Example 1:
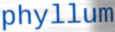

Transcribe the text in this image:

phyllum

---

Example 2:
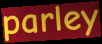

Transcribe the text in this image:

parley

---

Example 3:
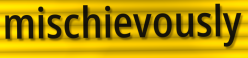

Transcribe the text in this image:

mischievously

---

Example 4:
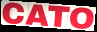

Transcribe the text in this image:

CATO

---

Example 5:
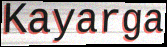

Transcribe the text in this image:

Kayarga